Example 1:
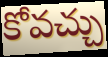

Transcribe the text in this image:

కోవచ్చు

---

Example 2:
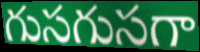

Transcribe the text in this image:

గుసగుసగా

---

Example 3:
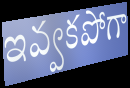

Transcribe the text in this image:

ఇవ్వకపోగా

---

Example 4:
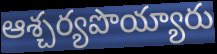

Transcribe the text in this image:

ఆశ్చర్యపొయ్యారు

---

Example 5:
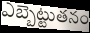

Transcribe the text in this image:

ఎబ్బెట్టుతనం